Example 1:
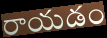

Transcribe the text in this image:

రాయడం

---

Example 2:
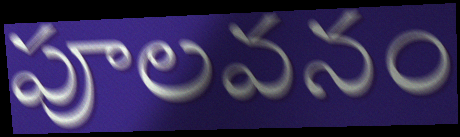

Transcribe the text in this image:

పూలవనం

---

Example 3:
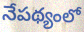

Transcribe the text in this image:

నేపథ్యంలో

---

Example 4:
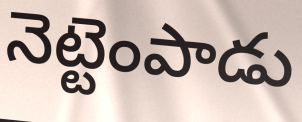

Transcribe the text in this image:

నెట్టెంపాడు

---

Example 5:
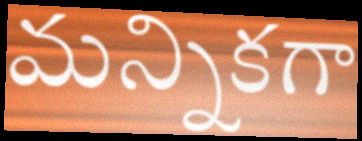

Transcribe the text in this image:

మన్నికగా